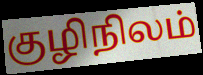
குழிநிலம்